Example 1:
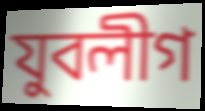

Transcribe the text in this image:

যুবলীগ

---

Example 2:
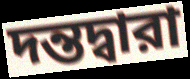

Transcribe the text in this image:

দন্তদ্বারা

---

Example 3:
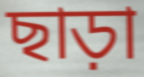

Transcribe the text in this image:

ছাড়া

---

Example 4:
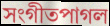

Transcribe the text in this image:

সংগীতপাগল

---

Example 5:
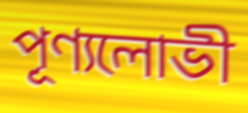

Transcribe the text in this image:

পূণ্যলোভী